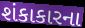
શંકાકારના